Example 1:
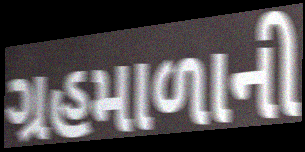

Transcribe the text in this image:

ગ્રહમાળાની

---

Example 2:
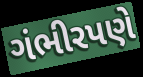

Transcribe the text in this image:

ગંભીરપણે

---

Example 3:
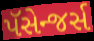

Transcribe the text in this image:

પૅસેન્જર્સ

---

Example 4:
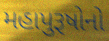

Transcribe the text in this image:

મહાપુરૂષોનો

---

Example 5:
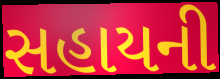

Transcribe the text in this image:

સહાયની